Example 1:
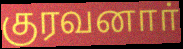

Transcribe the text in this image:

குரவனார்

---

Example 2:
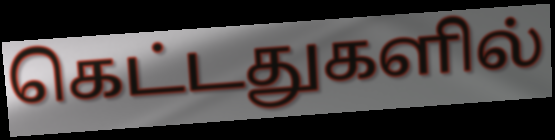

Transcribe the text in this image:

கெட்டதுகளில்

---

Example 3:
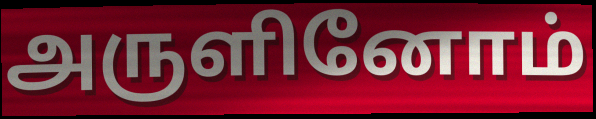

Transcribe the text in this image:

அருளினோம்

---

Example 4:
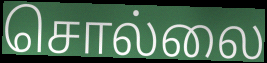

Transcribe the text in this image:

சொல்லை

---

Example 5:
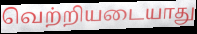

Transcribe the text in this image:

வெற்றியடையாது